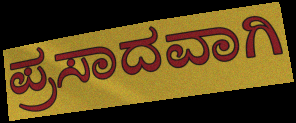
ಪ್ರಸಾದವಾಗಿ